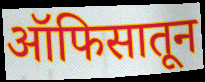
ऑफिसातून